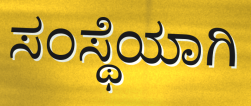
ಸಂಸ್ಥೆಯಾಗಿ